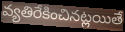
వ్యతిరేకించినట్లయితే